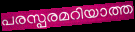
പരസ്പരമറിയാത്ത